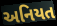
અનિયત